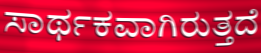
ಸಾರ್ಥಕವಾಗಿರುತ್ತದೆ